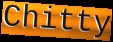
Chitty